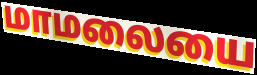
மாமலையை